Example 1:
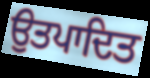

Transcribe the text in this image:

ਉਤਪਾਦਿਤ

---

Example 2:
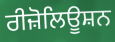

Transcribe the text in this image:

ਰੀਜ਼ੋਲਿਊਸ਼ਨ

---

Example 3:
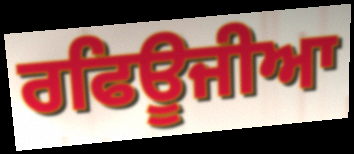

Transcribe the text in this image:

ਰਫਿਊਜੀਆ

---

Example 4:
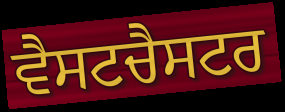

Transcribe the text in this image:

ਵੈਸਟਚੈਸਟਰ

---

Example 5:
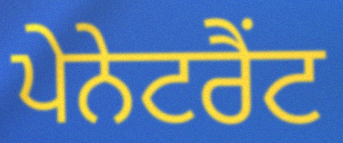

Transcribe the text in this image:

ਪੇਨੇਟਰੈਂਟ